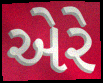
એરે